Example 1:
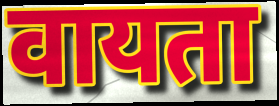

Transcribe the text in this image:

वायता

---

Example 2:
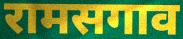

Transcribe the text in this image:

रामसगाव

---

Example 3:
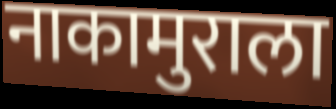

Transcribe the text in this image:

नाकामुराला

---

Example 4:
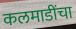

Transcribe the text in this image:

कलमाडींचा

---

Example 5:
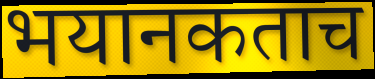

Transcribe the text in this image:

भयानकताच